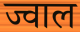
ज्वाल